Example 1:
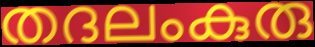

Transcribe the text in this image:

തദലംകുരു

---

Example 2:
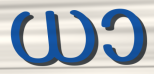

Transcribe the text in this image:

ധാ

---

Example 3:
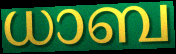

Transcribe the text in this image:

ധാബ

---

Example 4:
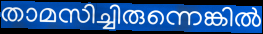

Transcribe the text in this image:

താമസിച്ചിരുന്നെങ്കിൽ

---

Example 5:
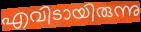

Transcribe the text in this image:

എവിടായിരുന്നു